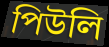
পিউলি